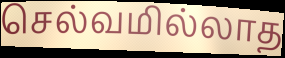
செல்வமில்லாத